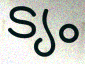
ട്യം